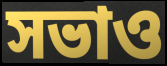
সভাও